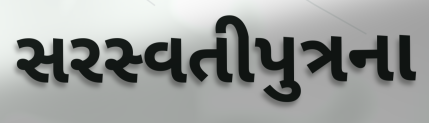
સરસ્વતીપુત્રના